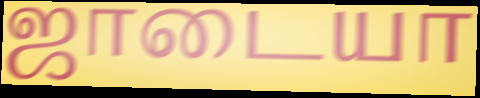
ஜாடையா